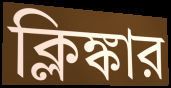
ক্লিঙ্কার